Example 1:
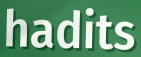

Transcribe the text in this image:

hadits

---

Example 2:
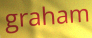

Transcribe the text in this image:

graham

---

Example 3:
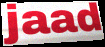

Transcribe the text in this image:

jaad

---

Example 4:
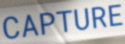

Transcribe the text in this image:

CAPTURE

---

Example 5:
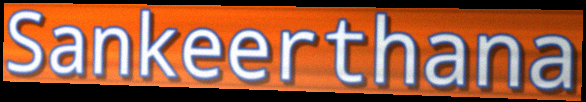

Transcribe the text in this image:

Sankeerthana